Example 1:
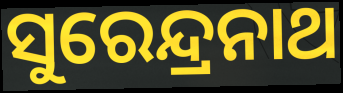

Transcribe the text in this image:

ସୁରେନ୍ଦ୍ରନାଥ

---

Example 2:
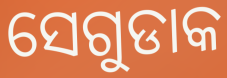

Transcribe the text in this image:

ସେଗୁଡାକ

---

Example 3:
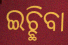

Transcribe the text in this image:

ଇଚ୍ଛିବା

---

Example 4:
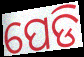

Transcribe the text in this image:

ପେଡି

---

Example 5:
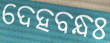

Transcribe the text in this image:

ଦେହବନ୍ଧଃ